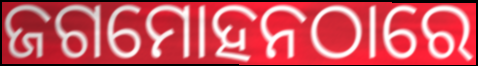
ଜଗମୋହନଠାରେ